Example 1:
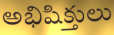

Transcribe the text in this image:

అభిషిక్తులు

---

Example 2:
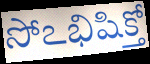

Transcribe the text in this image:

సోఽభిషిక్తో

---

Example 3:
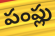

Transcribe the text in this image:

పంప్లు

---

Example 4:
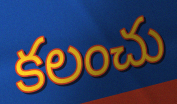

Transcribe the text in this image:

కలంచు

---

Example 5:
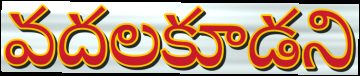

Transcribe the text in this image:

వదలకూడని